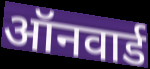
ऑनवार्ड